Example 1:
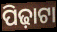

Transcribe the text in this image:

ପିଢ଼ାଟା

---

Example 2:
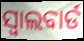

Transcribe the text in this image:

ସ୍ୱାଲବାର୍ଡ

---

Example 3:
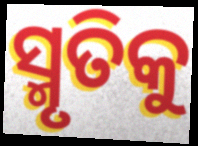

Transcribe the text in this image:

ସ୍ମୃତିକୁ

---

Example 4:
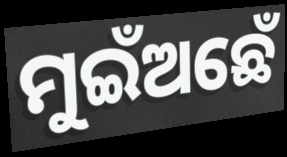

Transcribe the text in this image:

ମୁଇଁଅଛେଁ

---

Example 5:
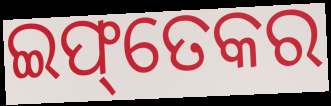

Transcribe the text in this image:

ଇଫ୍‌ତେକର